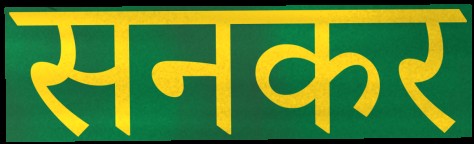
सनकर